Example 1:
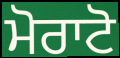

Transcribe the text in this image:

ਮੋਰਾਟੋ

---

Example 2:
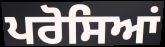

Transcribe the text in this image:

ਪਰੋਸਿਆਂ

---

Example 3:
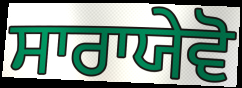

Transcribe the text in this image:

ਸਾਰਾਯੇਵੋ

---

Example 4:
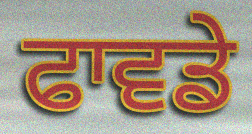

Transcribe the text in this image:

ਫਾਵਡੇ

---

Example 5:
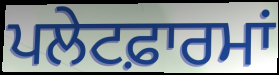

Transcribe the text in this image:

ਪਲੇਟਫ਼ਾਰਮਾਂ